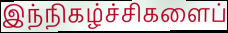
இந்நிகழ்ச்சிகளைப்